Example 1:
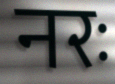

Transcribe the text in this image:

नरः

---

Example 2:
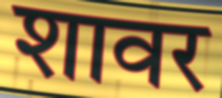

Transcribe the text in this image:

शावर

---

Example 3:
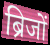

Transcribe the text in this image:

ब्रिजों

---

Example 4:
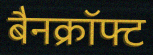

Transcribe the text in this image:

बैनक्रॉफ्ट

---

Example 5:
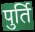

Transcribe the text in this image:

पुर्ति